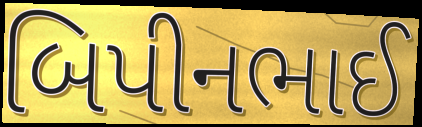
બિપીનભાઈ